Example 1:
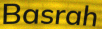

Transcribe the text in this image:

Basrah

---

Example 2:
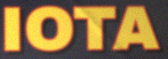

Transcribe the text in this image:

IOTA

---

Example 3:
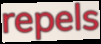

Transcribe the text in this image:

repels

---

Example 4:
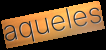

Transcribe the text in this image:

aqueles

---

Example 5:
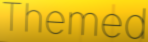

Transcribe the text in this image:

Themed